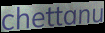
chettanu